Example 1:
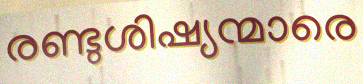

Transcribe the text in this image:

രണ്ടുശിഷ്യന്മാരെ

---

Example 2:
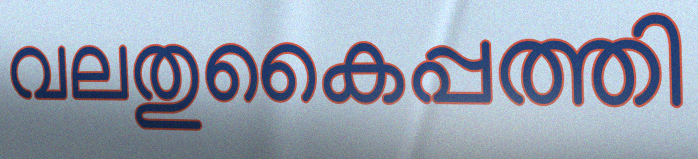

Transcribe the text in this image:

വലതുകൈപ്പത്തി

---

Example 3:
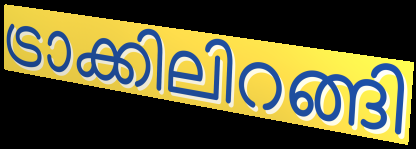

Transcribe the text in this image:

ട്രാക്കിലിറങ്ങി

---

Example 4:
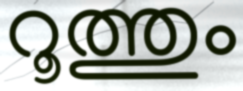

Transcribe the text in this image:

റൂത്തും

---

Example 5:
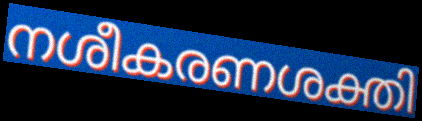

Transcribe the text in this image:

നശീകരണശക്തി